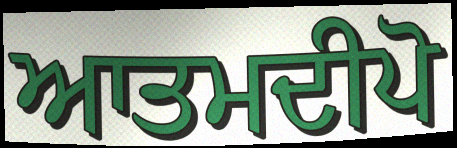
ਆਤਮਦੀਪੋ